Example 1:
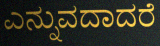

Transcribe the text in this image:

ಎನ್ನುವದಾದರೆ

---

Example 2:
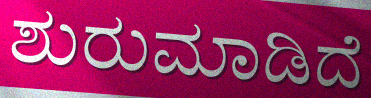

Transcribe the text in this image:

ಶುರುಮಾಡಿದೆ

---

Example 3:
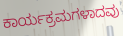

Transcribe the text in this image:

ಕಾರ್ಯಕ್ರಮಗಳಾದವು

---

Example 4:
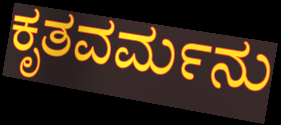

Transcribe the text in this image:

ಕೃತವರ್ಮನು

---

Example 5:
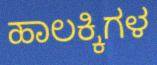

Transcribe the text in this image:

ಹಾಲಕ್ಕಿಗಳ